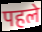
पहले